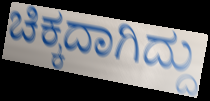
ಚಿಕ್ಕದಾಗಿದ್ದು